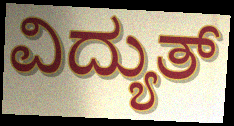
ವಿದ್ಯುತ್